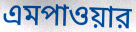
এমপাওয়ার